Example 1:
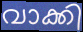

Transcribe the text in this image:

വാക്കി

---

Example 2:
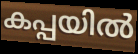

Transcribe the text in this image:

കപ്പയിൽ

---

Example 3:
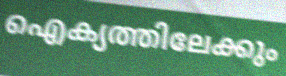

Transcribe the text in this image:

ഐക്യത്തിലേക്കും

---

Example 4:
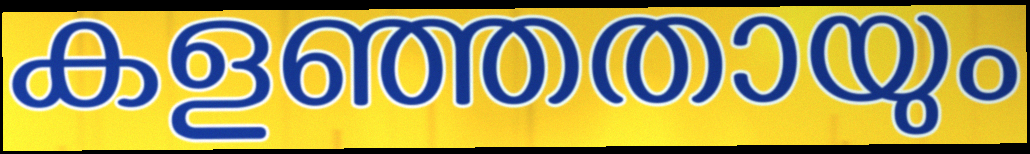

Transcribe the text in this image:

കളഞ്ഞതായും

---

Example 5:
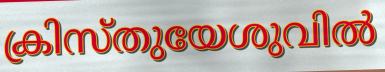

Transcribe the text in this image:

ക്രിസ്തുയേശുവിൽ